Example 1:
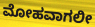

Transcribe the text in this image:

ಮೋಹವಾಗಲೀ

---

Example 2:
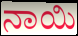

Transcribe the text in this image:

ನಾಯಿ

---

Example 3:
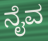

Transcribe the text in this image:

ನೈವ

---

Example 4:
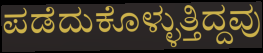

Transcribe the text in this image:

ಪಡೆದುಕೊಳ್ಳುತ್ತಿದ್ದವು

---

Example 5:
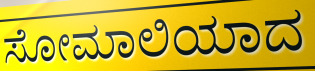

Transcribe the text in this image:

ಸೋಮಾಲಿಯಾದ